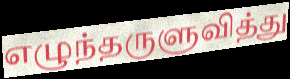
எழுந்தருளுவித்து